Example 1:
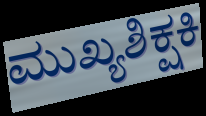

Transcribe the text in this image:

ಮುಖ್ಯಶಿಕ್ಷಕಿ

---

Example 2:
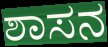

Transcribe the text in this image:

ಶಾಸನ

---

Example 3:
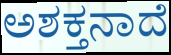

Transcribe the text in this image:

ಅಶಕ್ತನಾದೆ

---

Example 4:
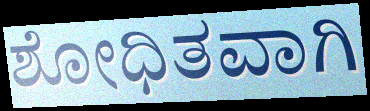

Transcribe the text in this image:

ಶೋಧಿತವಾಗಿ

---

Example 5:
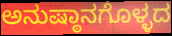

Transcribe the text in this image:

ಅನುಷ್ಠಾನಗೊಳ್ಳದ